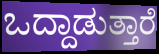
ಒದ್ದಾಡುತ್ತಾರೆ